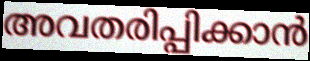
അവതരിപ്പിക്കാൻ